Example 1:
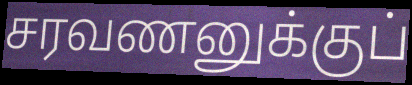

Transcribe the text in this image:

சரவணனுக்குப்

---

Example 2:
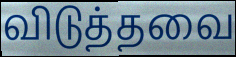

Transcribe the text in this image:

விடுத்தவை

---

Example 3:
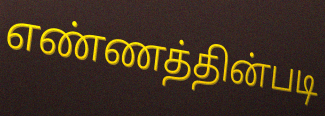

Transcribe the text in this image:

எண்ணத்தின்படி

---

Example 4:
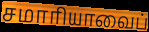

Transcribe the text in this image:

சமாரியாவைப்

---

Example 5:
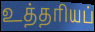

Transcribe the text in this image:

உத்தரியப்